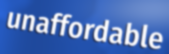
unaffordable